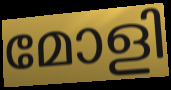
മോളി